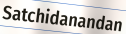
Satchidanandan